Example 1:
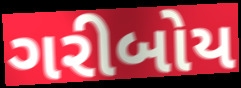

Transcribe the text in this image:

ગરીબોય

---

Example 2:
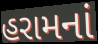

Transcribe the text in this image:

હરામનાં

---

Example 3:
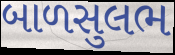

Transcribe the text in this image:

બાળસુલભ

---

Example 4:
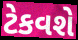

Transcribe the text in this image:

ટેકવશે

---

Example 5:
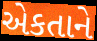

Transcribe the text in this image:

એકતાને